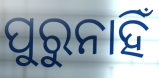
ପୁରୁନାହିଁ